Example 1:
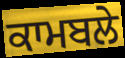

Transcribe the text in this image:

ਕਾਮਬਲੇ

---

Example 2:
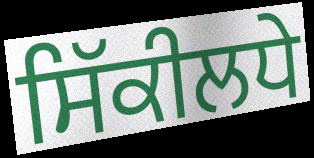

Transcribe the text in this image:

ਸਿੱਕੀਲਧੇ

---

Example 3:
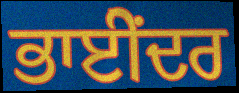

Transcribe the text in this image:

ਭਾਈੇਂਦਰ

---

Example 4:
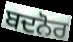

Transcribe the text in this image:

ਬਦਨੋਰ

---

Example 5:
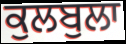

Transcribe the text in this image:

ਕੁਲਬੁਲਾ